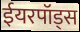
ईयरपॉड्स